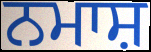
ਨਮਾਸ਼